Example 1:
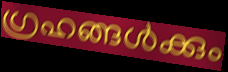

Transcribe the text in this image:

ഗ്രഹങ്ങൾക്കും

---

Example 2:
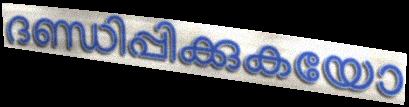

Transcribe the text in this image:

ദണ്ഡിപ്പിക്കുകയോ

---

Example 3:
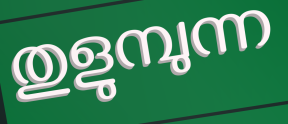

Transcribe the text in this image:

തുളുമ്പുന്ന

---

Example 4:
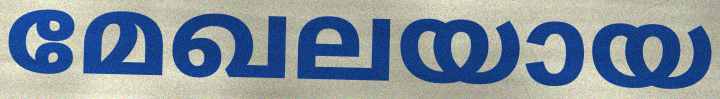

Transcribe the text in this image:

മേഖലയായ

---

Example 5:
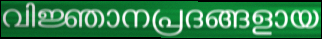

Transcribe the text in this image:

വിജ്ഞാനപ്രദങ്ങളായ